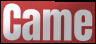
Came